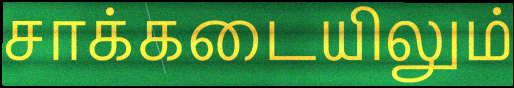
சாக்கடையிலும்